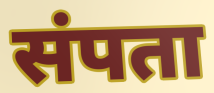
संपता